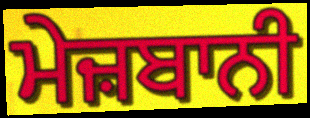
ਮੇਜ਼ਬਾਨੀ